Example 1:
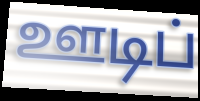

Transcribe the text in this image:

ஊடிப்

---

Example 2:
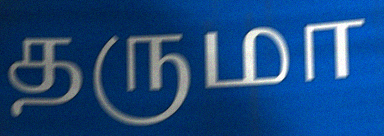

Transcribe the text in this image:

தருமா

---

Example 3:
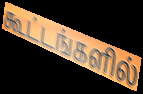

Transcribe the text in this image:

கூட்டங்களில்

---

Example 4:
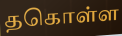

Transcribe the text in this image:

தகொள்ள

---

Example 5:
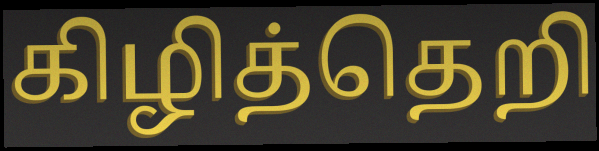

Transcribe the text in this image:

கிழித்தெறி